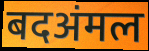
बदअंमल